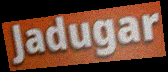
Jadugar